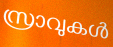
സ്രാവുകൾ